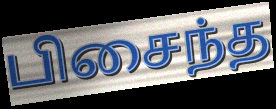
பிசைந்த